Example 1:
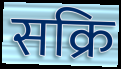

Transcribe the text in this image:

सक्रि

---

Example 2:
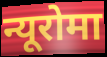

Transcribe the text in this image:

न्यूरोमा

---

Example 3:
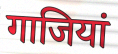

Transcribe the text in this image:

गाजियां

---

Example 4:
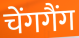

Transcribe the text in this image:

चेंगगैंग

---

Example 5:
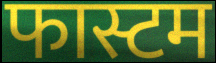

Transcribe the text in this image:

फास्टम